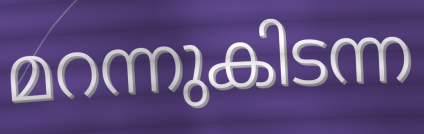
മറന്നുകിടന്ന